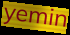
yemin